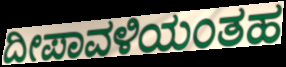
ದೀಪಾವಳಿಯಂತಹ